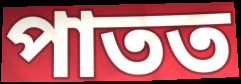
পাতত